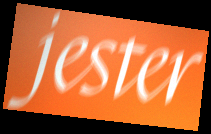
jester